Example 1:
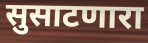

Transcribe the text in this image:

सुसाटणारा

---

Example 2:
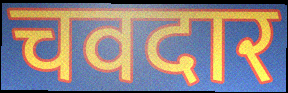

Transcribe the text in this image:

चवदार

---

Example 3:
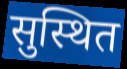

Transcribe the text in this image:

सुस्थित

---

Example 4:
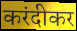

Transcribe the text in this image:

करंदीकर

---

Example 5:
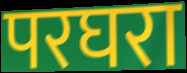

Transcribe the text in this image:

परघरा